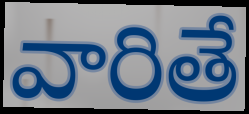
వారితే